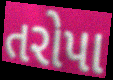
તરોપા